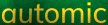
automic